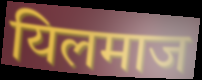
यिलमाज